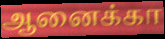
ஆனைக்கா